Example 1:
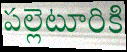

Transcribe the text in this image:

పల్లెటూరికి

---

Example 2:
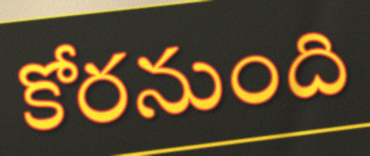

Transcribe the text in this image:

కోరనుంది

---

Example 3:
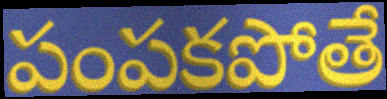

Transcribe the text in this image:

పంపకపోతే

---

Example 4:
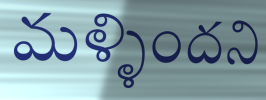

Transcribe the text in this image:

మళ్ళిందని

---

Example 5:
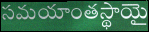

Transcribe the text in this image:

సమయాంతస్థాయై